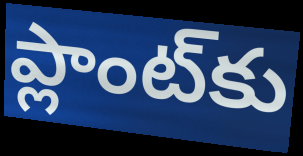
ప్లాంట్‌కు